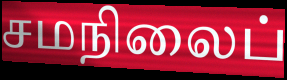
சமநிலைப்